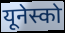
यूनेस्को